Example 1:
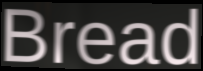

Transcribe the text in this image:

Bread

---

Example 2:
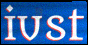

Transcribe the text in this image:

iust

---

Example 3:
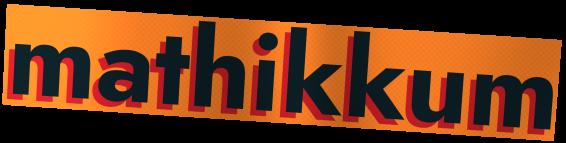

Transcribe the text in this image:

mathikkum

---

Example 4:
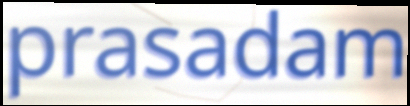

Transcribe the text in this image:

prasadam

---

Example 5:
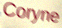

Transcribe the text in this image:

Coryne